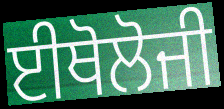
ਈਥੋਲੋਜੀ